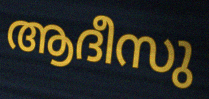
ആദീസു